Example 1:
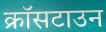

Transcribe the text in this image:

क्रॉसटाउन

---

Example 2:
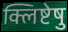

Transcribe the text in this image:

क्लिष्टेषु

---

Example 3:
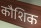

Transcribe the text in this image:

कौशिक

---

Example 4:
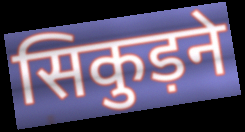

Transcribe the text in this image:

सिकुड़ने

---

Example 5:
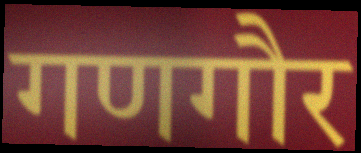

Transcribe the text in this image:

गणगौर